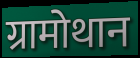
ग्रामोथान